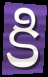
కి